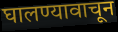
घालण्यावाचून